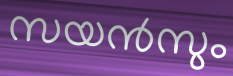
സയൻസും